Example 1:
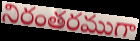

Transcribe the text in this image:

నిరంతరముగా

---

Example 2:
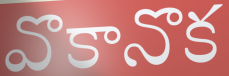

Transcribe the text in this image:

వొకానొక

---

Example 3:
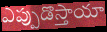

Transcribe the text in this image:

ఎప్పుడొస్తాయా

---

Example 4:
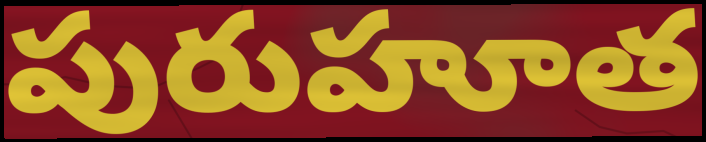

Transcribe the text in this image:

పురుహూత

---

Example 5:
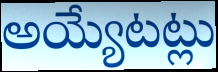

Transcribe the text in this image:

అయ్యేటట్లు